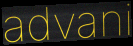
advani